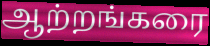
ஆற்றங்கரை